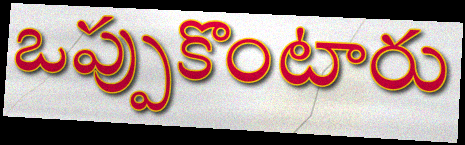
ఒప్పుకొంటారు